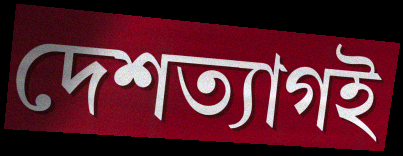
দেশত্যাগই